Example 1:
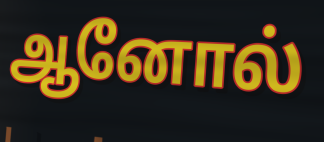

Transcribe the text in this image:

ஆனோல்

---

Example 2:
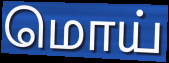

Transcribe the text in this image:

மொய்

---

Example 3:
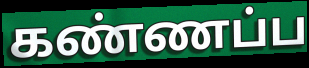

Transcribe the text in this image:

கண்ணப்ப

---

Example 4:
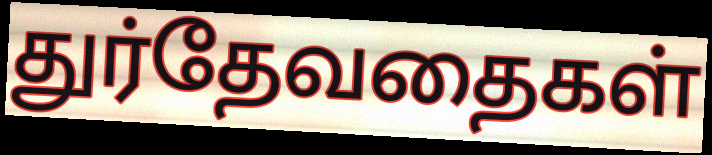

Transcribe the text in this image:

துர்தேவதைகள்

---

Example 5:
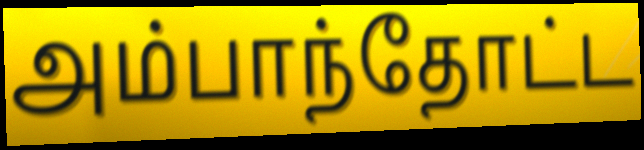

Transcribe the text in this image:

அம்பாந்தோட்ட